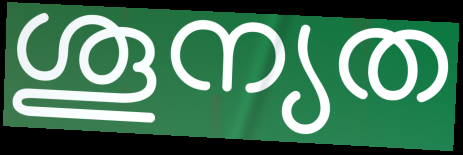
ശൂന്യത